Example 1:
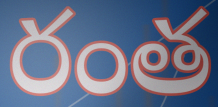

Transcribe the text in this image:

రంత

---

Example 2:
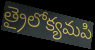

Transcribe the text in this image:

త్రైలోక్యమపి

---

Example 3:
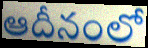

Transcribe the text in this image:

ఆదీనంలో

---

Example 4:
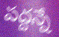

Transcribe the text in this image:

పద్దన్నే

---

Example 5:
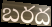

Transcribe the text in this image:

బరద